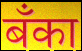
बॅंका